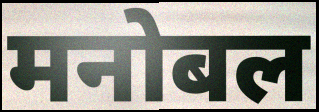
मनोबल